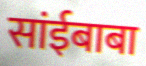
सांईबाबा